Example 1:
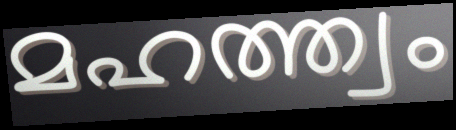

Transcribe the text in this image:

മഹത്ത്വം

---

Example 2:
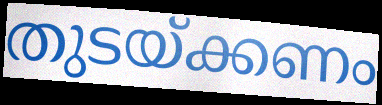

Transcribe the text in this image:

തുടയ്ക്കണം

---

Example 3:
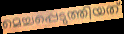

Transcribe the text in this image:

മെച്ചപ്പെടുത്തിയത്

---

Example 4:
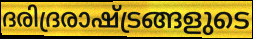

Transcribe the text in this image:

ദരിദ്രരാഷ്ട്രങ്ങളുടെ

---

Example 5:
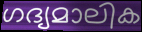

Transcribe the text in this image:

ഗദ്യമാലിക